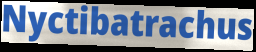
Nyctibatrachus